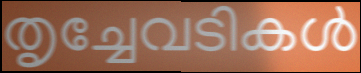
തൃച്ചേവടികൾ